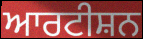
ਆਰਟੀਸ਼ਨ